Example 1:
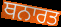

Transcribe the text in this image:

ਥਨਾਰਤ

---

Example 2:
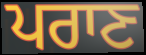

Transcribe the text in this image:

ਪਰਾਣ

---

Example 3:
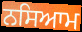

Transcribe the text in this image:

ਨਸਿਆਮ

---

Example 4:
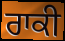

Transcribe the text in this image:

ਰਾਕੀ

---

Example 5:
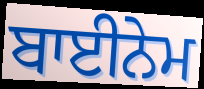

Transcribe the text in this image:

ਬਾਈਨੇਮ